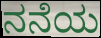
ನನೆಯ